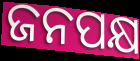
ଜନପକ୍ଷ